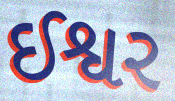
ઈશ્વર